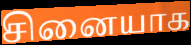
சினையாக